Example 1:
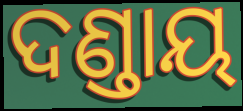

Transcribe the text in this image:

ଦଣ୍ଡାୟ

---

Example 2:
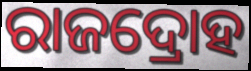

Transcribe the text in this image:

ରାଜଦ୍ରୋହ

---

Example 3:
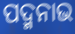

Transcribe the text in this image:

ପଦ୍ମନାଭ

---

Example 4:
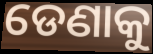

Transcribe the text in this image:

ଡେଣାକୁ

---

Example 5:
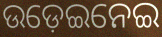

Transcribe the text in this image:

ଉଡ଼େଇନେଇ